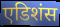
एडिशंस